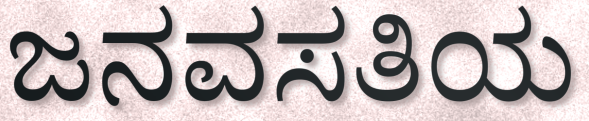
ಜನವಸತಿಯ